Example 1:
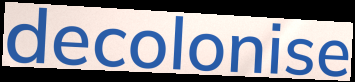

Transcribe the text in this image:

decolonise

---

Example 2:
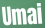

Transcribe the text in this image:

Umai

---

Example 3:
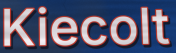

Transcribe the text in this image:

Kiecolt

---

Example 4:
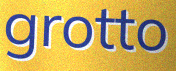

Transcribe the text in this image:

grotto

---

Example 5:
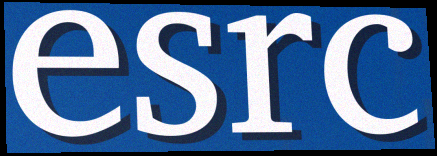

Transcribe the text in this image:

esrc